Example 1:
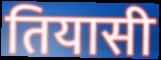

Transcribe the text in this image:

तियासी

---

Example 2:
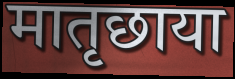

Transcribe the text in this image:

मातृछाया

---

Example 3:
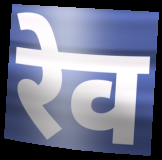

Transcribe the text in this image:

रेव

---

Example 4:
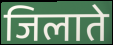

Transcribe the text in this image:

जिलाते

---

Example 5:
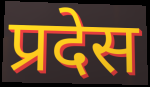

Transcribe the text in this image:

प्रदेस